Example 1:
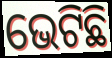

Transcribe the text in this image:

ଭେଟିଛି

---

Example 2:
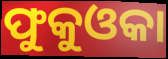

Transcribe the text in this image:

ଫୁକୁଓକା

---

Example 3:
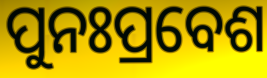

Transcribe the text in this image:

ପୁନଃପ୍ରବେଶ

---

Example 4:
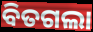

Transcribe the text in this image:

ବିତଗଲା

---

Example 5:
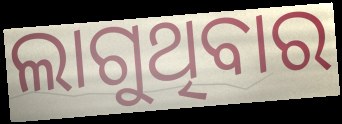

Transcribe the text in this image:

ଲାଗୁଥିବାର